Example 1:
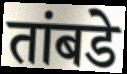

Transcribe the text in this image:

तांबडे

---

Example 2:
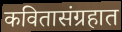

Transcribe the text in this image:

कवितासंग्रहात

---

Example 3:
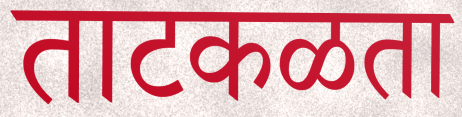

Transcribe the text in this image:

ताटकळता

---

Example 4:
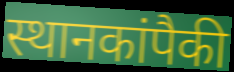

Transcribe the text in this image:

स्थानकांपैकी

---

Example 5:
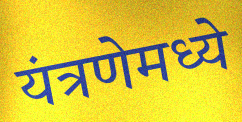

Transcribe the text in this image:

यंत्रणेमध्ये